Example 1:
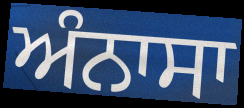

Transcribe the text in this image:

ਅੰਨਾਸਾ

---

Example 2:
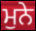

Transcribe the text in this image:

ਮੁਨੇ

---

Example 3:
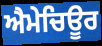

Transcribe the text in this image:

ਐਮੇਚਿਊਰ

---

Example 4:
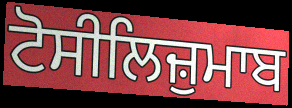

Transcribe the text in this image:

ਟੋਸੀਲਿਜ਼ੁਮਾਬ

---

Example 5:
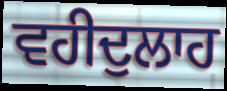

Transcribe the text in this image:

ਵਹੀਦੁਲਾਹ